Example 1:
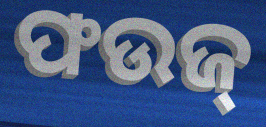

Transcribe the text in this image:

ଫଉଜ୍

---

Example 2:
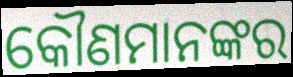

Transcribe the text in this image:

କୌଣମାନଙ୍କର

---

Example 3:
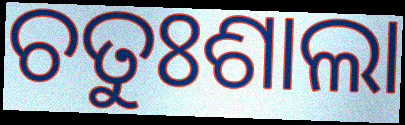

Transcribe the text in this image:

ଚତୁଃଶାଲା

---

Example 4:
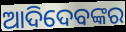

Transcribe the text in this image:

ଆଦିଦେବଙ୍କର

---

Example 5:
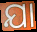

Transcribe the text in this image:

ଯା